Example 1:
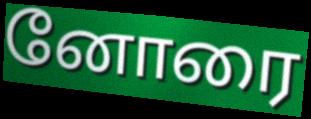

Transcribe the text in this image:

னோரை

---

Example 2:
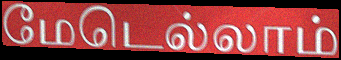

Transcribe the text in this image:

மேடெல்லாம்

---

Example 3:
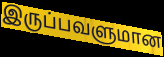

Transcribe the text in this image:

இருப்பவளுமான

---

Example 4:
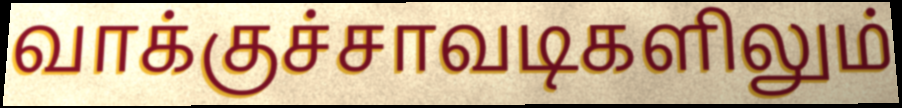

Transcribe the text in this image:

வாக்குச்சாவடிகளிலும்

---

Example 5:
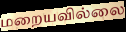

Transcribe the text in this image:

மறையவில்லை